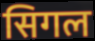
सिगल